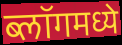
ब्लॉगमध्ये